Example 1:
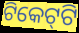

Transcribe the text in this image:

ଟିକେଟ୍‌ଟି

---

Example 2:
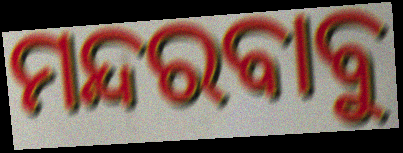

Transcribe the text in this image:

ମନ୍ଦରବାବୁ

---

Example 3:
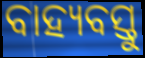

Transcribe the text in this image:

ବାହ୍ୟବସ୍ତୁ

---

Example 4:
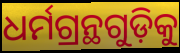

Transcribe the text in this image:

ଧର୍ମଗ୍ରନ୍ଥଗୁଡ଼ିକୁ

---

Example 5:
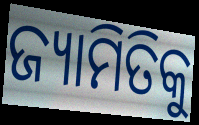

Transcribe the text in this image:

ଜ୍ୟାମିତିକୁ